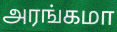
அரங்கமா